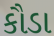
કૌડા